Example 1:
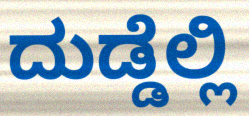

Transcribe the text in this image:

ದುಡ್ಡೆಲ್ಲಿ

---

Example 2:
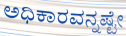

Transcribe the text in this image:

ಅಧಿಕಾರವನ್ನಷ್ಟೇ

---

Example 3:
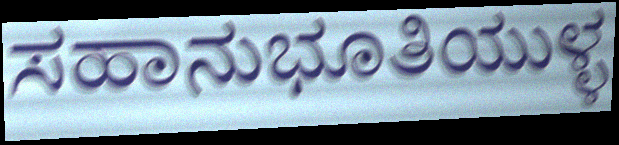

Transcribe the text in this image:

ಸಹಾನುಭೂತಿಯುಳ್ಳ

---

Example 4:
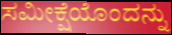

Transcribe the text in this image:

ಸಮೀಕ್ಷೆಯೊಂದನ್ನು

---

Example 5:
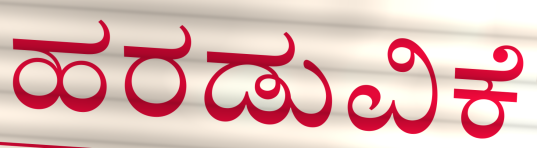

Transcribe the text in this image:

ಹರಡುವಿಕೆ